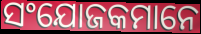
ସଂଯୋଜକମାନେ